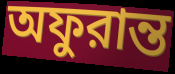
অফুরান্ত